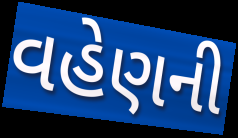
વહેણની